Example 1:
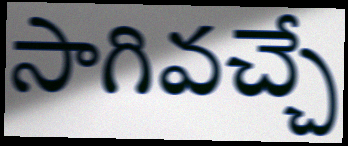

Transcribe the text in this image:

సాగివచ్చే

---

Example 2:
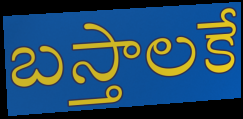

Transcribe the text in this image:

బస్తాలకే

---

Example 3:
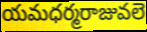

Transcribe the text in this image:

యమధర్మరాజువలె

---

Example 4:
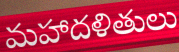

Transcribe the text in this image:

మహాదళితులు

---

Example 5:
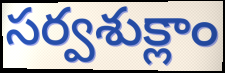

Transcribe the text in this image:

సర్వశుక్లాం